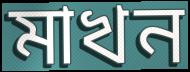
মাখন